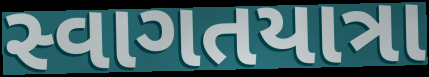
સ્વાગતયાત્રા